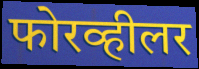
फोरव्हीलर